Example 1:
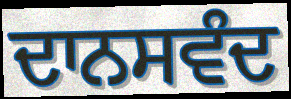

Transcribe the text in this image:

ਦਾਨਸਵੰਦ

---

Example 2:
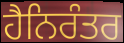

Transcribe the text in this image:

ਹੈਨਿਰੰਤਰ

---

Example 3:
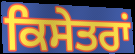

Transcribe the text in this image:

ਕਿਸੇਤਰਾਂ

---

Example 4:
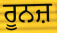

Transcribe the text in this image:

ਰੂਨਜ਼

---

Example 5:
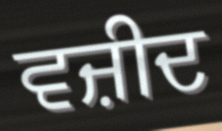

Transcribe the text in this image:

ਵਜ਼ੀਦ